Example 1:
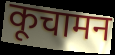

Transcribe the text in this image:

कूचामन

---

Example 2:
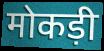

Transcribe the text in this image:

मोकड़ी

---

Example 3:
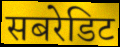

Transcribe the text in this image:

सबरेडिट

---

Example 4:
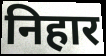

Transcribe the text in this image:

निहार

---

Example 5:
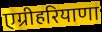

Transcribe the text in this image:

एग्रीहरियाणा